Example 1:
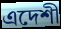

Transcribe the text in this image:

এদেশী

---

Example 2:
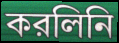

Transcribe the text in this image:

করলিনি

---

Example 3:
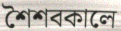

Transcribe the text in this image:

শৈশবকালে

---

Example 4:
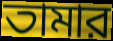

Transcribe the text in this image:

তামার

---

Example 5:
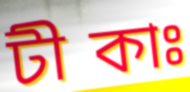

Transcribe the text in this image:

টীকাঃ